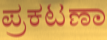
ಪ್ರಕಟಣಾ